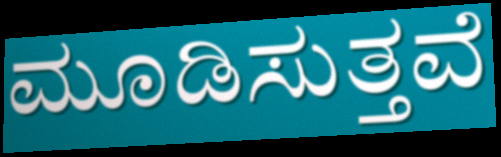
ಮೂಡಿಸುತ್ತವೆ